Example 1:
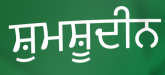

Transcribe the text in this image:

ਸ਼ੁਮਸ਼ੂਦੀਨ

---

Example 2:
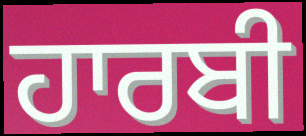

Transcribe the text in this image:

ਹਾਰਬੀ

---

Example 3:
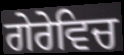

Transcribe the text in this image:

ਗੇਰੇਵਿਚ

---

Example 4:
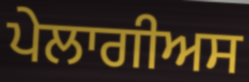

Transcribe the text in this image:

ਪੇਲਾਗੀਅਸ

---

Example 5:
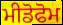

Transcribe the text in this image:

ਮੀਡੋਫੋਮ